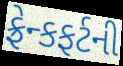
ફ્રેન્કફર્ટની